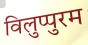
विलुप्पुरम